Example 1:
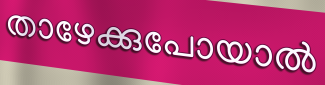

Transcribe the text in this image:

താഴേക്കുപോയാൽ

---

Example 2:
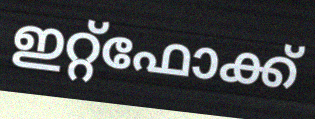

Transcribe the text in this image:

ഇറ്റ്ഫോക്ക്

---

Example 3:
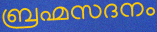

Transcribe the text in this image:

ബ്രഹ്മസദനം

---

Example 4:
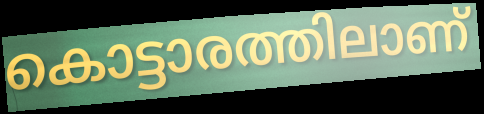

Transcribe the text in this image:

കൊട്ടാരത്തിലാണ്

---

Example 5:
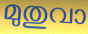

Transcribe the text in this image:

മുതുവാ